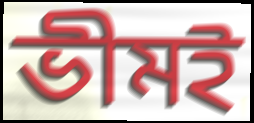
ভীমই